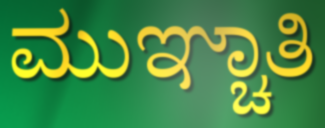
ಮುಞ್ಚಾತಿ